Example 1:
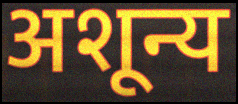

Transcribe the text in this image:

अशून्य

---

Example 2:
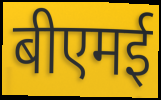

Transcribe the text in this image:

बीएमई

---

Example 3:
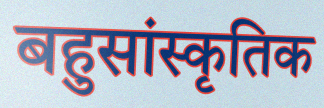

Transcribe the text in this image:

बहुसांस्कृतिक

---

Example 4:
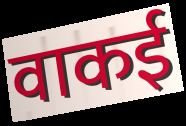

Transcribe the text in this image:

वाकई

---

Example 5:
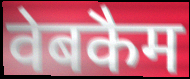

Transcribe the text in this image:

वेबकैम